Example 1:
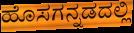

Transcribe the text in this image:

ಹೊಸಗನ್ನಡದಲ್ಲಿ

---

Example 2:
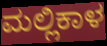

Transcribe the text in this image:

ಮಲ್ಲಿಕಾಳ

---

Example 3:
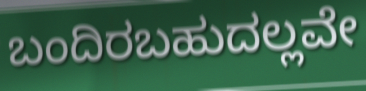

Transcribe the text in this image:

ಬಂದಿರಬಹುದಲ್ಲವೇ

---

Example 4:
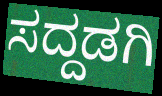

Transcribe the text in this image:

ಸದ್ದಡಗಿ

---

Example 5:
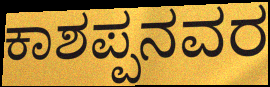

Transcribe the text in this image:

ಕಾಶಪ್ಪನವರ